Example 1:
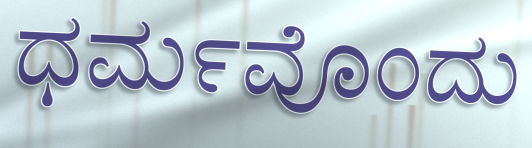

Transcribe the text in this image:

ಧರ್ಮವೊಂದು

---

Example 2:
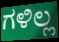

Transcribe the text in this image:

ಗಳಿಲ್ಲ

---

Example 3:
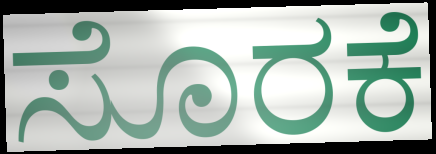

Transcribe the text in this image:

ಸೊರಕೆ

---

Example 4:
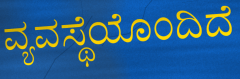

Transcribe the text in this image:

ವ್ಯವಸ್ಥೆಯೊಂದಿದೆ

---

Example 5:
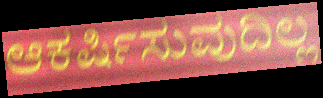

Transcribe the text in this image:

ಆಕರ್ಷಿಸುವುದಿಲ್ಲ